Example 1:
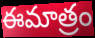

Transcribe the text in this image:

ఈమాత్రం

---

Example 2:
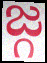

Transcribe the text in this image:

జ్గ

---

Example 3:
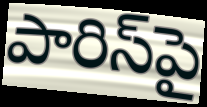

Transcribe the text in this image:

పారిస్‌పై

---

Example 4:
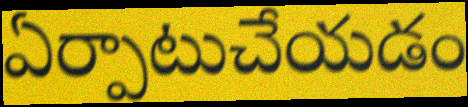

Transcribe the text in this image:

ఏర్పాటుచేయడం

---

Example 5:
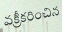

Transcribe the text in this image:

వక్రీకరించిన